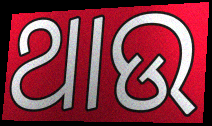
ଥାଉ